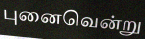
புனைவென்று